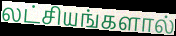
லட்சியங்களால்